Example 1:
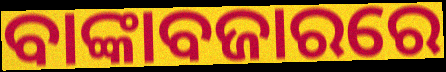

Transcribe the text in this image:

ବାଙ୍କାବଜାରରେ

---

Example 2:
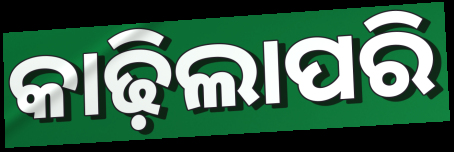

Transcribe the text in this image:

କାଢ଼ିଲାପରି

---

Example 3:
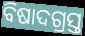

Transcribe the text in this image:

ବିଷାଦଗ୍ରସ୍ତ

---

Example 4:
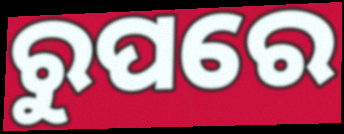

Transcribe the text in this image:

ରୁପରେ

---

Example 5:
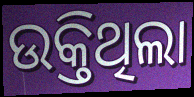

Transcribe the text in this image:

ଉକ୍ତିଥିଲା